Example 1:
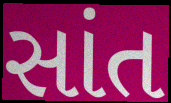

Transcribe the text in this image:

સાંત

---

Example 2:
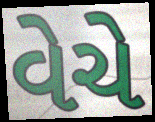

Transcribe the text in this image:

વેચે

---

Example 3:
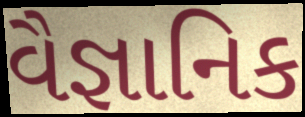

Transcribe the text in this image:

વૈજ્ઞાનિક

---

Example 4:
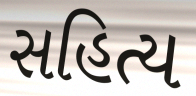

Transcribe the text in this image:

સહિત્ય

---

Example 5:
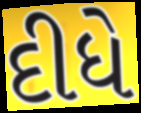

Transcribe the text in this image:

દીધે